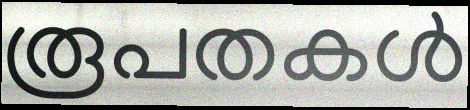
രൂപതകൾ